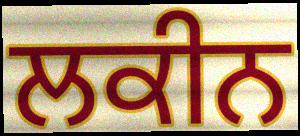
ਲਕੀਨ